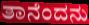
ತಾನೆಂದನು